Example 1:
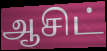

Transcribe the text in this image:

ஆசிட்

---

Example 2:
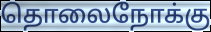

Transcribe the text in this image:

தொலைநோக்கு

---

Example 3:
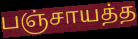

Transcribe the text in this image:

பஞ்சாயத்த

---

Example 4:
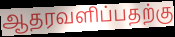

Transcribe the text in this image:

ஆதரவளிப்பதற்கு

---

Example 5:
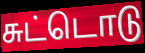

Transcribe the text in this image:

சுட்டொடு